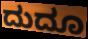
ದುದೂ